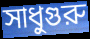
সাধুগুরু